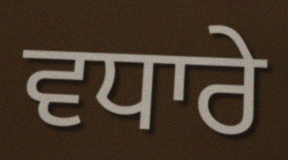
ਵਧਾਰੇ